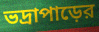
ভদ্রাপাড়ের